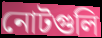
নোটগুলি